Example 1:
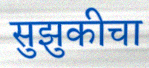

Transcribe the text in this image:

सुझुकीचा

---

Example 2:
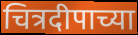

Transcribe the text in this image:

चित्रदीपाच्या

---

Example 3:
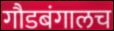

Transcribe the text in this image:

गौडबंगालच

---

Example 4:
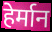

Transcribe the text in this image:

हेर्मान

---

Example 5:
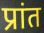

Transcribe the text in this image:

प्रांत